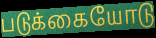
படுக்கையோடு